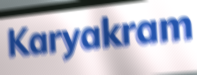
Karyakram